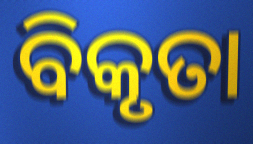
ବିକୃତା